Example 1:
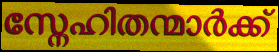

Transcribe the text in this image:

സ്നേഹിതന്മാർക്ക്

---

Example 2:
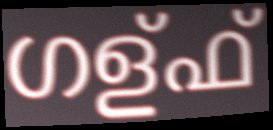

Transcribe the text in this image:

ഗള്ഫ്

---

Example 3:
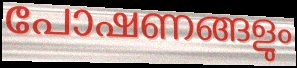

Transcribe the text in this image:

പോഷണങ്ങളും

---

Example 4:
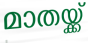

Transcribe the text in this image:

മാതയ്ക്ക്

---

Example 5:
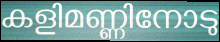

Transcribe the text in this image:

കളിമണ്ണിനോടു